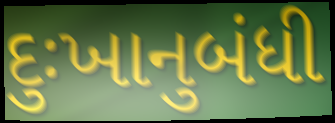
દુઃખાનુબંધી